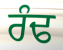
ਰੰਢ